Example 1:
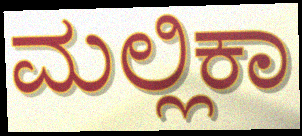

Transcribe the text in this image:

ಮಲ್ಲಿಕಾ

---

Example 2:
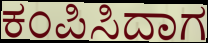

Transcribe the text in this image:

ಕಂಪಿಸಿದಾಗ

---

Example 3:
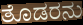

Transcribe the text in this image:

ತೊಡರನು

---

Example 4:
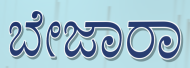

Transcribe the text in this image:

ಬೇಜಾರಾ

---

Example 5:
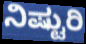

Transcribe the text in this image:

ನಿಷ್ಟುರಿ